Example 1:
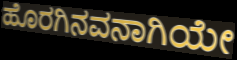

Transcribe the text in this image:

ಹೊರಗಿನವನಾಗಿಯೇ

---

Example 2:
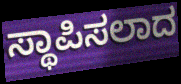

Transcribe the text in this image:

ಸ್ಥಾಪಿಸಲಾದ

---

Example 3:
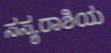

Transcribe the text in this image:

ಸಸ್ಯರಾಶಿಯ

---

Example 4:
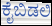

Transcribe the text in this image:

ಕೈಬಿಡಲಿ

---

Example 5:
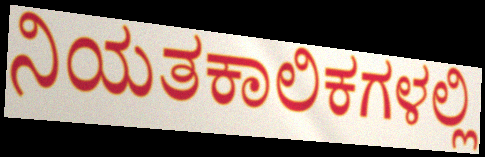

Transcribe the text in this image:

ನಿಯತಕಾಲಿಕಗಳಲ್ಲಿ